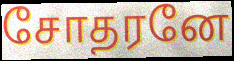
சோதரனே